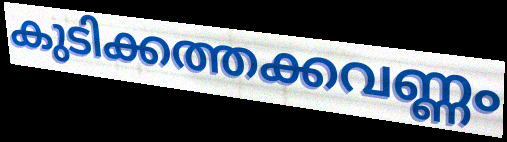
കുടിക്കത്തക്കവണ്ണം